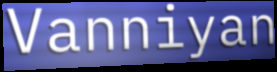
Vanniyan